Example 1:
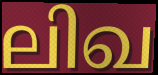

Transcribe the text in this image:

ലിഖ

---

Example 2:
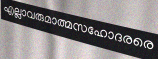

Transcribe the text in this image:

എല്ലാവരുമാത്മസഹോദരരെ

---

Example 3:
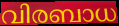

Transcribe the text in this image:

വിരബാധ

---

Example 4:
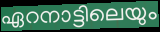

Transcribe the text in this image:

ഏറനാട്ടിലെയും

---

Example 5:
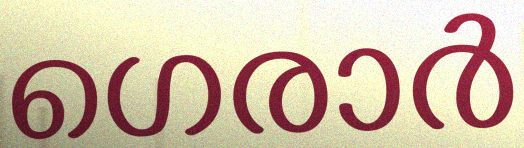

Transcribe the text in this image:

ഗെരാർ